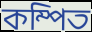
কম্পিত